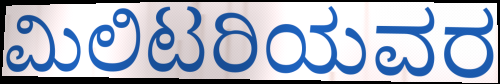
ಮಿಲಿಟರಿಯವರ